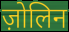
ज़ोलिन